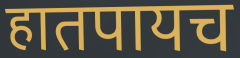
हातपायच